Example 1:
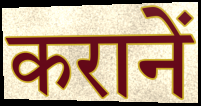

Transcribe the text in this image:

करानें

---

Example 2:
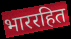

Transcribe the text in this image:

भाररहित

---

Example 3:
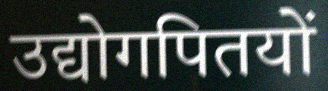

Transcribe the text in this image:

उद्योगपितयों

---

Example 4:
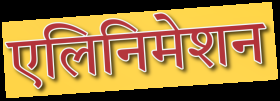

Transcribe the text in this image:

एलिनिमेशन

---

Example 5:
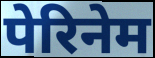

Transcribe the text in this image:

पेरिनेम